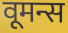
वूमन्स